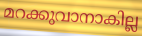
മറക്കുവാനാകില്ല